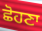
ਛੋਹਣਾ